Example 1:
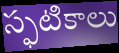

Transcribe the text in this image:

స్ఫటికాలు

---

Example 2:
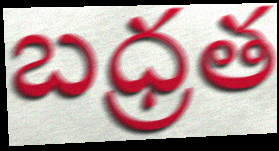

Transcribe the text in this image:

బధ్రత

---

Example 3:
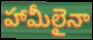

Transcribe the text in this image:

హామీలైనా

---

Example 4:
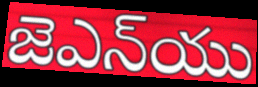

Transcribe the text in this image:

జెఎన్‌యు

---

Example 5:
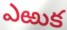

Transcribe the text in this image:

ఎఱుక